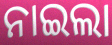
ନାଇଲା